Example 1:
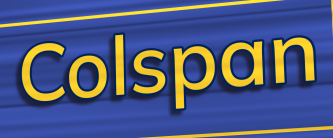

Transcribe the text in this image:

Colspan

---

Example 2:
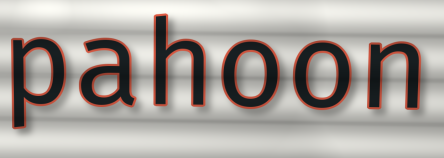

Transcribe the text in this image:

pahoon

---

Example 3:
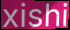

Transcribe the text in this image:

xishi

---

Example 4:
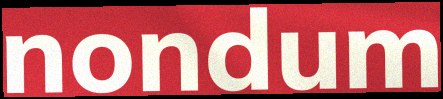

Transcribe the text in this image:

nondum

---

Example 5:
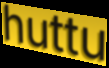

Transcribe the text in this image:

huttu